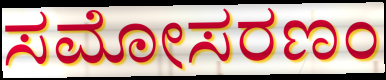
ಸಮೋಸರಣಂ